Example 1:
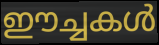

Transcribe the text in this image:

ഈച്ചകൾ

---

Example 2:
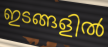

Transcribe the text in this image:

ഇടങ്ങളിൽ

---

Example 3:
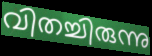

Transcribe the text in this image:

വിതച്ചിരുന്നു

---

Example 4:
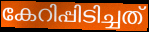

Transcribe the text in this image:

കേറിപ്പിടിച്ചത്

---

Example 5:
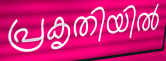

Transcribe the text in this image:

പ്രകൃതിയിൽ